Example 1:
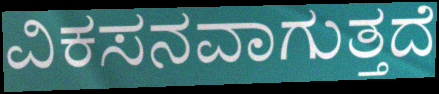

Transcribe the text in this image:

ವಿಕಸನವಾಗುತ್ತದೆ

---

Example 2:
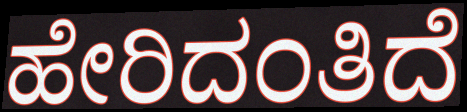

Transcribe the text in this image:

ಹೇರಿದಂತಿದೆ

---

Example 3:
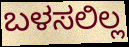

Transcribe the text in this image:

ಬಳಸಲಿಲ್ಲ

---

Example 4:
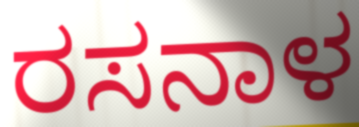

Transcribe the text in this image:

ರಸನಾಳ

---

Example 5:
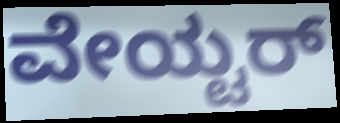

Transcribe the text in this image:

ವೇಯ್ಟರ್